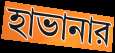
হাভানার